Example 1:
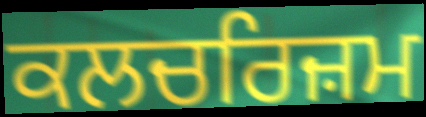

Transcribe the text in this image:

ਕਲਚਰਿਜ਼ਮ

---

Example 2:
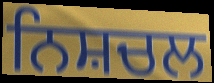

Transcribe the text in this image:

ਨਿਸ਼ਚਲ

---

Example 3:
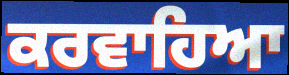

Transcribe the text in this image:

ਕਰਵਾਹਿਆ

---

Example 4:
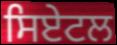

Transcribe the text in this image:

ਸਿਏਟਲ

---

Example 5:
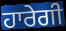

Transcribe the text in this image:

ਹਾਰੇਗੀ